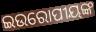
ଇଉରୋପୀୟଙ୍କ